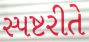
સ્પષ્ટરીતે